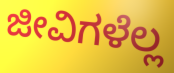
ಜೀವಿಗಳೆಲ್ಲ